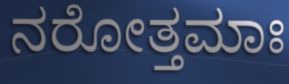
ನರೋತ್ತಮಾಃ